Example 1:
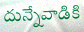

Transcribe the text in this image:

దున్నేవాడికి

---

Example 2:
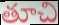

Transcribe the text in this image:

తూచి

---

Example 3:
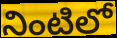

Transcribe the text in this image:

నింటిలో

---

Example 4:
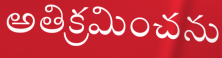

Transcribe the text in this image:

అతిక్రమించను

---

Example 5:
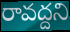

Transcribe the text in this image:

రావద్దని